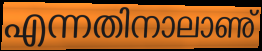
എന്നതിനാലാണു്